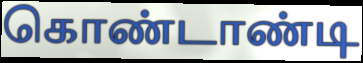
கொண்டாண்டி